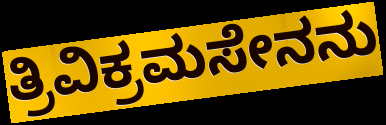
ತ್ರಿವಿಕ್ರಮಸೇನನು